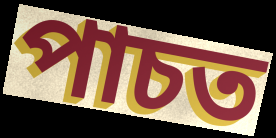
পাচত